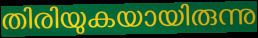
തിരിയുകയായിരുന്നു